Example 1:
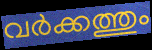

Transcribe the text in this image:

വർക്കത്തും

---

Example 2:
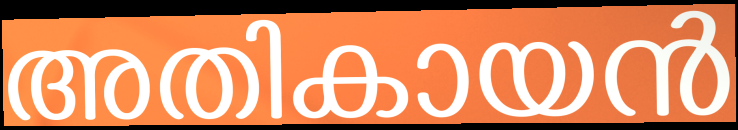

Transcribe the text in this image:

അതികായൻ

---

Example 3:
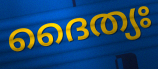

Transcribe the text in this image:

ദൈത്യഃ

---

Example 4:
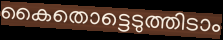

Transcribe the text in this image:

കൈതൊട്ടെടുത്തിടാം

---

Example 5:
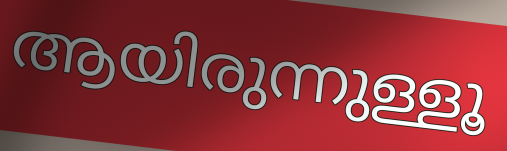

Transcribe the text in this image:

ആയിരുന്നുള്ളൂ